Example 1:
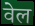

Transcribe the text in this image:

वेल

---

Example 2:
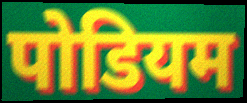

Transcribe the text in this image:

पोडियम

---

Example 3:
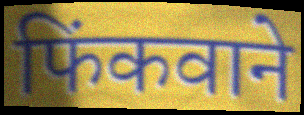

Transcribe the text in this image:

फिंकवाने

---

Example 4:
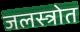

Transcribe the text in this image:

जलस्त्रोत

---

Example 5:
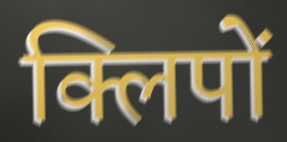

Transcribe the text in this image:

क्लिपों